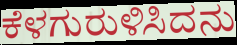
ಕೆಳಗುರುಳಿಸಿದನು